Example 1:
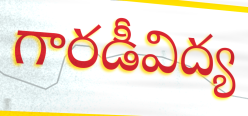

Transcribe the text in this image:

గారడీవిద్య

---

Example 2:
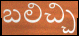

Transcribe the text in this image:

బలిచ్చి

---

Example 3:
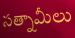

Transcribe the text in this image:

సత్నామీలు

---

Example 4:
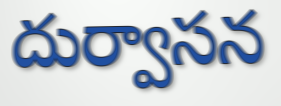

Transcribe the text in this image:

దుర్వాసన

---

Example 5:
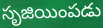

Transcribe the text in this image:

సృజియింపడు